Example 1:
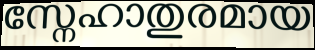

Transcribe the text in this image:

സ്നേഹാതുരമായ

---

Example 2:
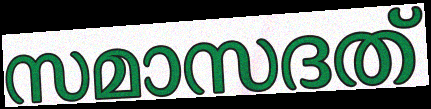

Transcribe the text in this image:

സമാസദത്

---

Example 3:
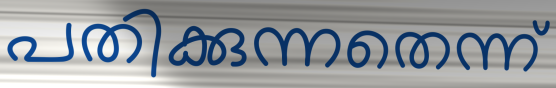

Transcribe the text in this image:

പതിക്കുന്നതെന്ന്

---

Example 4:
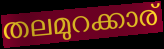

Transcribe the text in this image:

തലമുറക്കാര്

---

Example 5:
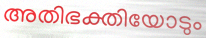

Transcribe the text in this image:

അതിഭക്തിയോടും